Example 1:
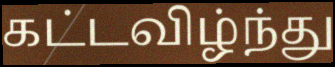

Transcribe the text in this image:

கட்டவிழ்ந்து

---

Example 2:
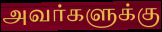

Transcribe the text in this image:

அவர்களுக்கு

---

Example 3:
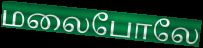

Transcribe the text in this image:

மலைபோலே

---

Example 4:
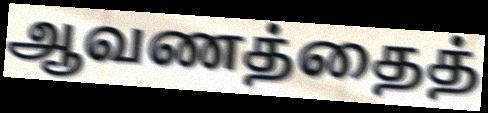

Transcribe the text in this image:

ஆவணத்தைத்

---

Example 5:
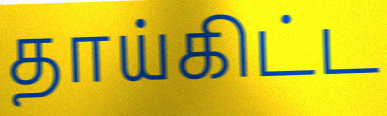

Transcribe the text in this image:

தாய்கிட்ட